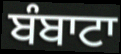
ਬੰਬਾਟਾ